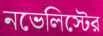
নভেলিস্টের